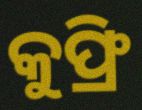
କୁଫ୍ରି